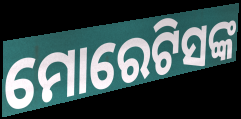
ମୋରେଟିସଙ୍କ